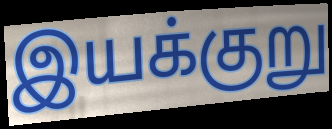
இயக்குறு